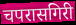
चपरासगिरी